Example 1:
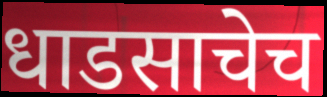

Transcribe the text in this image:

धाडसाचेच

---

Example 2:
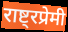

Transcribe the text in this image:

राष्ट्रप्रेमी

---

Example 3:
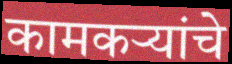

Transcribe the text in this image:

कामकऱ्यांचे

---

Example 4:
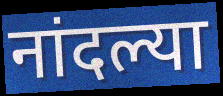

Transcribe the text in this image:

नांदल्या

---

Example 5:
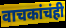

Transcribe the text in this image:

वाचकांचंही